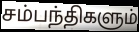
சம்பந்திகளும்